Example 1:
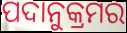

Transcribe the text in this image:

ପଦାନୁକ୍ରମର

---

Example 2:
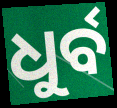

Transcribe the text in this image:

ଧୁର୍ବ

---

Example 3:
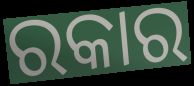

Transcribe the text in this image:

ରକାର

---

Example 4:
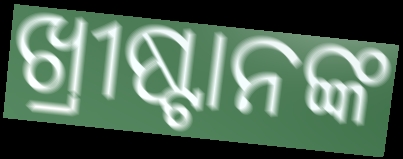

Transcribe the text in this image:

ଖ୍ରୀଷ୍ଟାନଙ୍କ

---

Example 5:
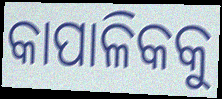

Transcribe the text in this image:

କାପାଳିକକୁ